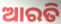
ଆରତି